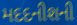
મદદનીશની